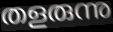
തളരുന്നു